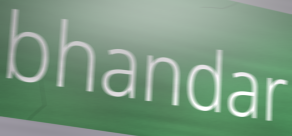
bhandar